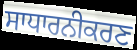
ਸਾਧਾਰਨੀਕਰਣ